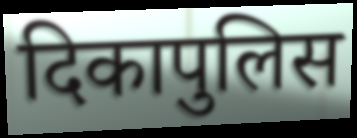
दिकापुलिस